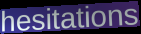
hesitations